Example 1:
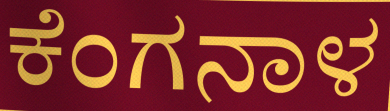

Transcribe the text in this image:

ಕೆಂಗನಾಳ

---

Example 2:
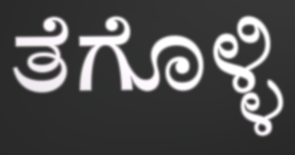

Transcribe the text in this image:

ತೆಗೊಳ್ಳಿ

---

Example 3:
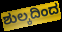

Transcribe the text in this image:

ಶುಲ್ಕದಿಂದ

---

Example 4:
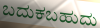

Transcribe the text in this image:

ಬದುಕಬಹುದು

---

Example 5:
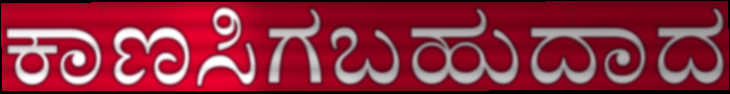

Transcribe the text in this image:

ಕಾಣಸಿಗಬಹುದಾದ